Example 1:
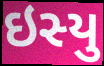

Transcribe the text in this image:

ઇસ્યુ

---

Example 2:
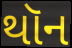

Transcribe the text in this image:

થૉન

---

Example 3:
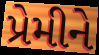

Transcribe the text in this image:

પ્રેમીને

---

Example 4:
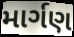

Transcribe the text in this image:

માર્ગણ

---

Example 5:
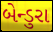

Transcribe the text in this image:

બેન્ડુરા